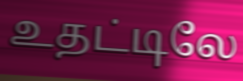
உதட்டிலே